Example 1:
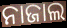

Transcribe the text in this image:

ନାଜାଲ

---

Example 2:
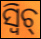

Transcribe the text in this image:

ସ୍ଵିଚ୍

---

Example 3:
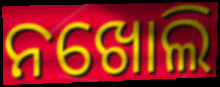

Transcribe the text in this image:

ନଖୋଲି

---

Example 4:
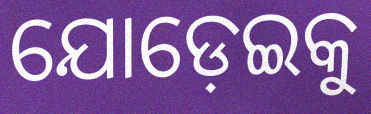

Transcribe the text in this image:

ଯୋଡ଼େଇକୁ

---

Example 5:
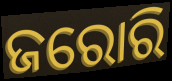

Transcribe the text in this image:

ଜରୋରି